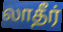
லாதீர்